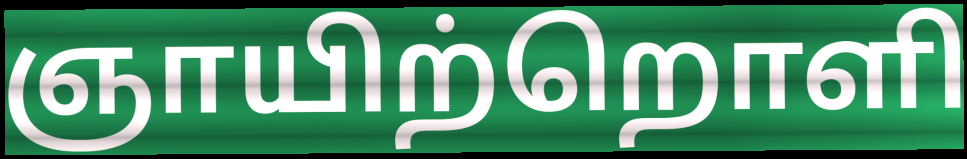
ஞாயிற்றொளி